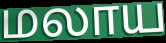
மலாய